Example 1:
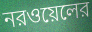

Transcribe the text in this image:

নরওয়েলের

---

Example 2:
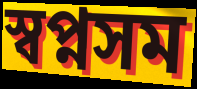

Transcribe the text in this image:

স্বপ্নসম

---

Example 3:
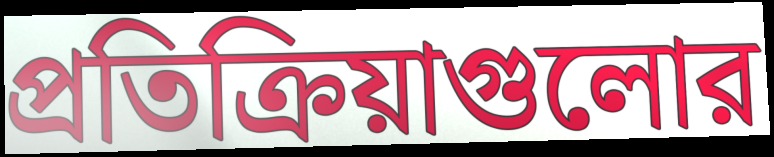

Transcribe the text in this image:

প্রতিক্রিয়াগুলোর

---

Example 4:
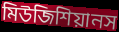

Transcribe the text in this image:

মিউজিশিয়ানস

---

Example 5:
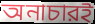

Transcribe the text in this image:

অনাচারই